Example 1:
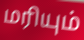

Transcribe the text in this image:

மரியும்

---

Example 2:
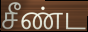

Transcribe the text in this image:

சீண்ட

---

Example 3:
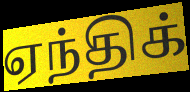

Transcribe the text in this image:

ஏந்திக்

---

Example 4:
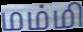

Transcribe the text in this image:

மம்மி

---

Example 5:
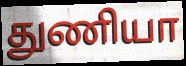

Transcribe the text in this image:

துணியா